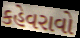
કહેવરાવો